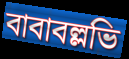
বাবাবল্লভি